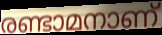
രണ്ടാമനാണ്